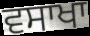
ਵਸਾਖਾ